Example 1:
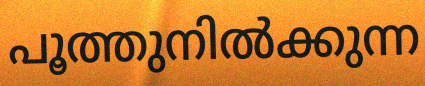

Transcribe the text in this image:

പൂത്തുനിൽക്കുന്ന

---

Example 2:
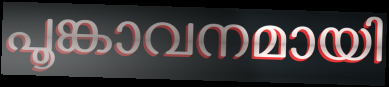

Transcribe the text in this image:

പൂങ്കാവനമായി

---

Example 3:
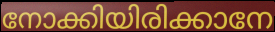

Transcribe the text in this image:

നോക്കിയിരിക്കാനേ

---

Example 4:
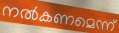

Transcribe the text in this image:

നൽകണമെന്ന്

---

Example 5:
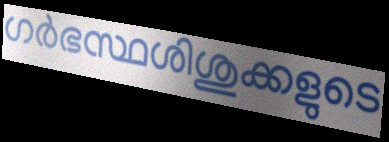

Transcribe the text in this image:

ഗർഭസ്ഥശിശുക്കളുടെ